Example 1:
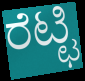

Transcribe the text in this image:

ರೆಟ್ಟಿ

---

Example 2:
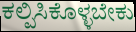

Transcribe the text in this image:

ಕಲ್ಪಿಸಿಕೊಳ್ಳಬೇಕು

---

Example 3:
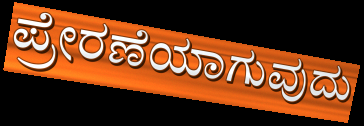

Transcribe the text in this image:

ಪ್ರೇರಣೆಯಾಗುವುದು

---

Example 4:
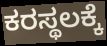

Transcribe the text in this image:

ಕರಸ್ಥಲಕ್ಕೆ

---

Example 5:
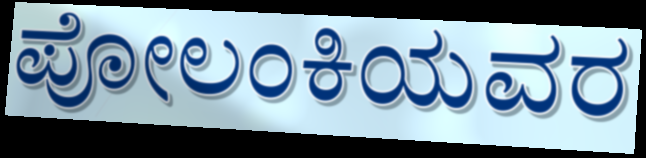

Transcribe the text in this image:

ಪೋಲಂಕಿಯವರ